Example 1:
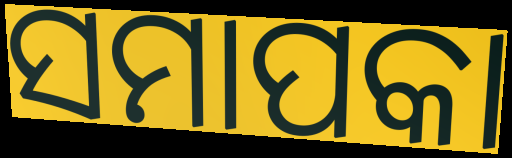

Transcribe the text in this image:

ସମାପକା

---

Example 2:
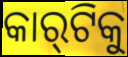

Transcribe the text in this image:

କାର୍‌ଟିକୁ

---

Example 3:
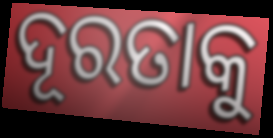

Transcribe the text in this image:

ଦୂରତାକୁ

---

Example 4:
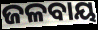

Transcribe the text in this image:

ଜଳବାୟ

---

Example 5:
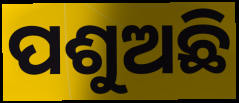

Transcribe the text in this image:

ପଶୁଅଛି